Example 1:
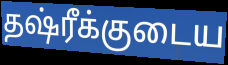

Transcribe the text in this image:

தஷ்ரீக்குடைய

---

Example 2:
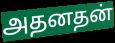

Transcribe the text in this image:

அதனதன்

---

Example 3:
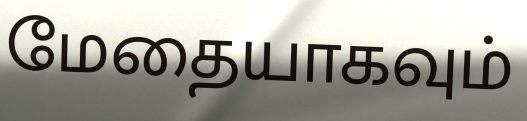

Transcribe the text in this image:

மேதையாகவும்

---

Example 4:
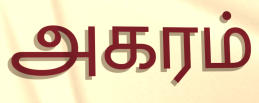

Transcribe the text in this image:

அகரம்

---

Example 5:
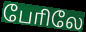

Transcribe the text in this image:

பேரிலே